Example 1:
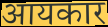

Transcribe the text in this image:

आयकार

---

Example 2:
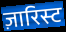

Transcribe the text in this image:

ज़ारिस्ट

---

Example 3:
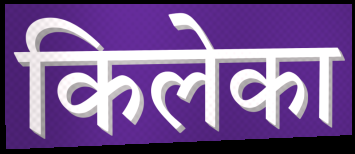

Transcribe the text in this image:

किलेका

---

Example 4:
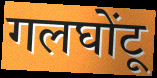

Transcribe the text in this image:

गलघोंटू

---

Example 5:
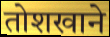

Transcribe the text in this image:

तोशखाने